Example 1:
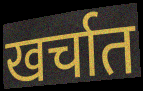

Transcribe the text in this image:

खर्चात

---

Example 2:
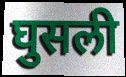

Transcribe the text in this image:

घुसली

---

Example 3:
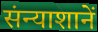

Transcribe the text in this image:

संन्याशानें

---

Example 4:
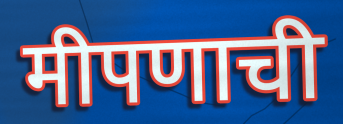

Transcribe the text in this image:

मीपणाची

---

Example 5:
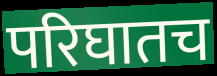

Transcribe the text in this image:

परिघातच